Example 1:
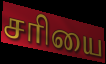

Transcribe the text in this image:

சரியை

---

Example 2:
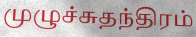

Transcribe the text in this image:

முழுச்சுதந்திரம்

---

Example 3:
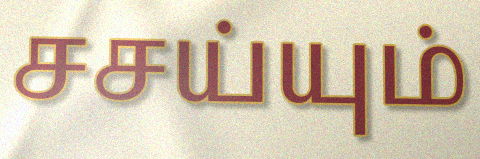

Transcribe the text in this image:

சசய்யும்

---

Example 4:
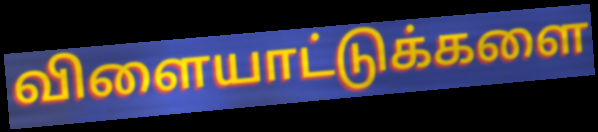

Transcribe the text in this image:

விளையாட்டுக்களை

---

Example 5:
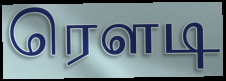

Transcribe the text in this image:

ரௌடி